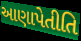
આણાપેતીતિ